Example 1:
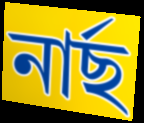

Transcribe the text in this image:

নাৰ্ছ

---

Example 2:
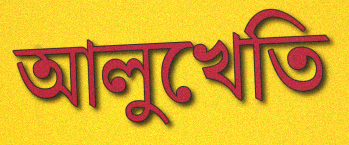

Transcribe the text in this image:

আলুখেতি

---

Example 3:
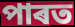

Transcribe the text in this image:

পাৰত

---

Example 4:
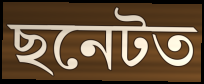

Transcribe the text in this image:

ছনেটত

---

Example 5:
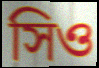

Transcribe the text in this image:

সিও